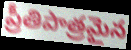
ప్రీతిపాత్రమైన